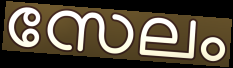
സേലം